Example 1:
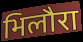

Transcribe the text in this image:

भिलौरा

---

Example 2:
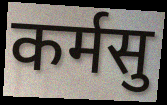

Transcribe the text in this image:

कर्मसु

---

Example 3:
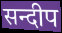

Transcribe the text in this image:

सन्दीप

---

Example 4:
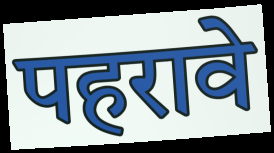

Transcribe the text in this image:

पहरावे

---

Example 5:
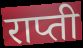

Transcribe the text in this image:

राप्ती